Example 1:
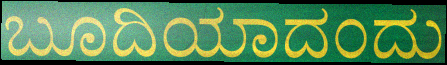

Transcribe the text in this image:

ಬೂದಿಯಾದಂದು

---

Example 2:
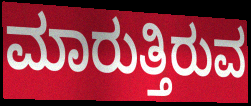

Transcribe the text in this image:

ಮಾರುತ್ತಿರುವ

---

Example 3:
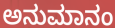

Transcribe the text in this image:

ಅನುಮಾನಂ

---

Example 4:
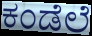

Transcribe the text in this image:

ಕಂಡೆಲೆ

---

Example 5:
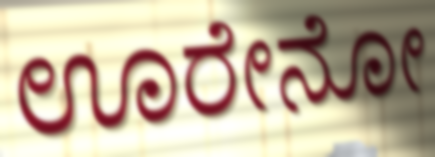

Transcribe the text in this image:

ಊರೇನೋ